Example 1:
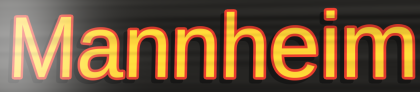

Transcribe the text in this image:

Mannheim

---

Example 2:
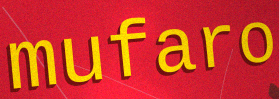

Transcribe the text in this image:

mufaro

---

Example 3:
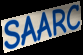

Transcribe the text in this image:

SAARC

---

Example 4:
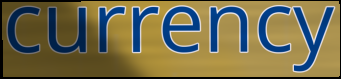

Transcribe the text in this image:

currency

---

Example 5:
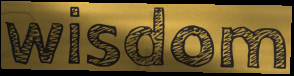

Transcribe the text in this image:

wisdom